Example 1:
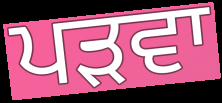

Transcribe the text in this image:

ਪੜਵਾ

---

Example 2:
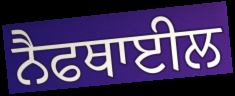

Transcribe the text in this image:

ਨੈਫਥਾਈਲ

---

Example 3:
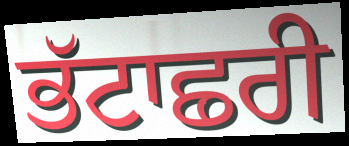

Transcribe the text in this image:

ਭੱਟਾਛਰੀ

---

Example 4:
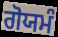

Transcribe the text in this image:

ਗੋਯਮੰ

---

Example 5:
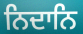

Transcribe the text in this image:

ਨਿਦਾਨਿ